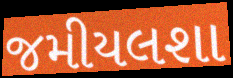
જમીયલશા